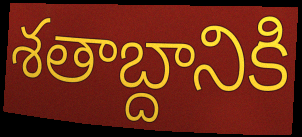
శతాబ్దానికి